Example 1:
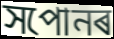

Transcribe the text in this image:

সপোনৰ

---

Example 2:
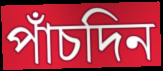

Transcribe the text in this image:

পাঁচদিন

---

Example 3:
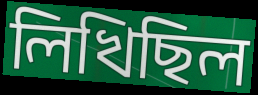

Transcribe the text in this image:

লিখিছিল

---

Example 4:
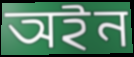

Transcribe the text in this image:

অইন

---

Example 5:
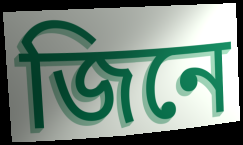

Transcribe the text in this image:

জিনে